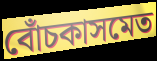
বোঁচকাসমেত